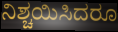
ನಿಶ್ಚಯಿಸಿದರೂ